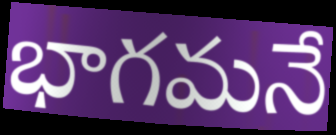
భాగమనే